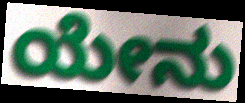
ಯೇನು